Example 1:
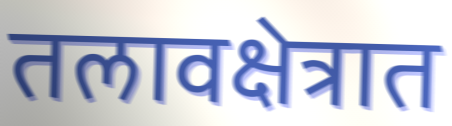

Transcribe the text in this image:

तलावक्षेत्रात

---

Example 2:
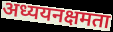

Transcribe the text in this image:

अध्ययनक्षमता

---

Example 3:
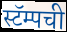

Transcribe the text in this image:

स्टॅम्पची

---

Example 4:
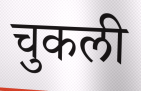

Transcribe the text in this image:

चुकली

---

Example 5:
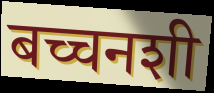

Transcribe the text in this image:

बच्चनशी